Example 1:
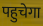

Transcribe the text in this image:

पहुचेगा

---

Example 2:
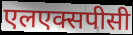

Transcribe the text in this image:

एलएक्सपीसी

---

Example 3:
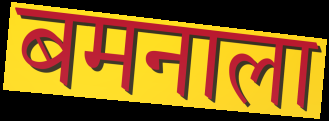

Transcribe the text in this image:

बमनाला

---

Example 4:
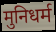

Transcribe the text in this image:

मुनिधर्म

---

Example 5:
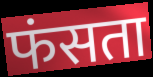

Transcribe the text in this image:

फंसता